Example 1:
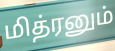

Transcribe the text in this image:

மித்ரனும்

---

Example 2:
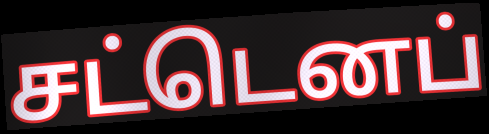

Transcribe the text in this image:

சட்டெனப்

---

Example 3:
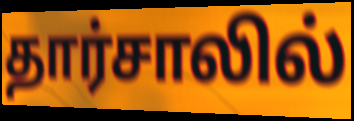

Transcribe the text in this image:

தார்சாலில்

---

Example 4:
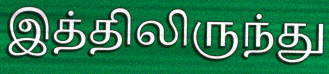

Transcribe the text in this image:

இத்திலிருந்து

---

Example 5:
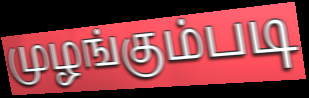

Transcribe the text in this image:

முழங்கும்படி